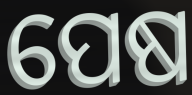
ପେଷ